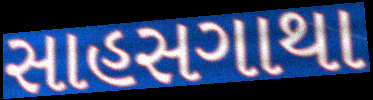
સાહસગાથા